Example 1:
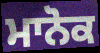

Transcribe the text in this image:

ਮਾਨੋਕ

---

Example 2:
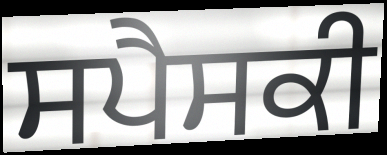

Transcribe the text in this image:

ਸਪੈਸਕੀ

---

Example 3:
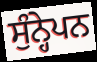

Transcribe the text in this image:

ਸੁੰਨ੍ਹੇਪਨ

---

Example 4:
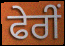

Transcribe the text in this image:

ਫੇਰੀਂ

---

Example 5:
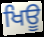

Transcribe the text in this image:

ਖਿਊ